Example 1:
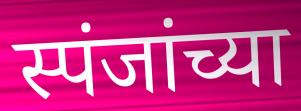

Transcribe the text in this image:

स्पंजांच्या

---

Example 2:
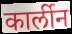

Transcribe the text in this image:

कार्लीन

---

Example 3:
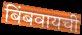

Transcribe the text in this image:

बिंबवायची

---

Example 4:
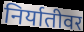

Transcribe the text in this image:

निर्यातीवर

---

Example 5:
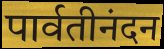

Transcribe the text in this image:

पार्वतीनंदन